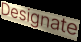
Designate